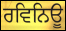
ਰਵਿਨਿਊ